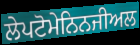
ਲੇਪਟੋਮੇਨਿਨਜੀਅਲ